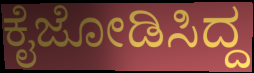
ಕೈಜೋಡಿಸಿದ್ದ